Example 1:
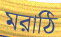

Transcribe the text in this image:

মরাঠি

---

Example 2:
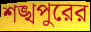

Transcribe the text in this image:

শঙ্খপুরের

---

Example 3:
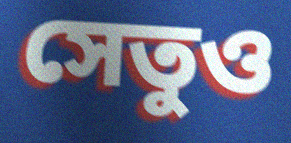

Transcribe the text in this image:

সেতুও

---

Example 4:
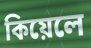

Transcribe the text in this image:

কিয়েলে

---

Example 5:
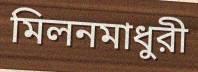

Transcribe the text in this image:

মিলনমাধুরী